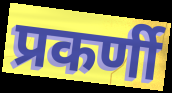
प्रकर्णी